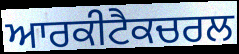
ਆਰਕੀਟੈਕਚਰਲ